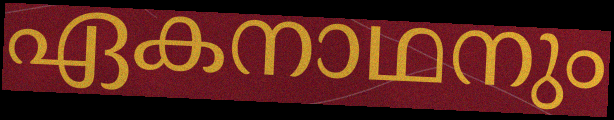
ഏകനാഥനും